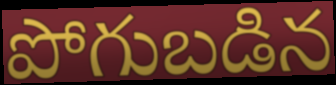
పోగుబడిన